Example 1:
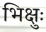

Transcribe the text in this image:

भिक्षुः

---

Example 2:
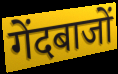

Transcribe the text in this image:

गेंदबाजों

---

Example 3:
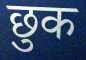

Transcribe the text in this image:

छुक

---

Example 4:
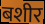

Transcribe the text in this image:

बशीर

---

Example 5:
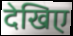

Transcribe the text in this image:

देखिए